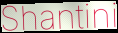
Shantini